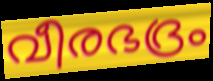
വീരഭദ്രം